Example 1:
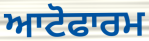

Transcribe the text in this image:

ਆਟੋਫਾਰਮ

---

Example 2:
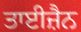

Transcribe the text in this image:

ਤਾਈਜ਼ੈਨ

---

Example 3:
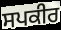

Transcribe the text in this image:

ਸਪਕੀਰ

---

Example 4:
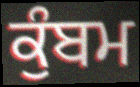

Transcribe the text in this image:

ਕੁੰਬਮ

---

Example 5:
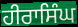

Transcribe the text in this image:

ਹੀਰਾਸਿੰਘ